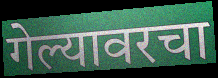
गेल्यावरचा